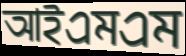
আইএমএম